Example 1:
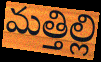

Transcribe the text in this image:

మత్తిల్లి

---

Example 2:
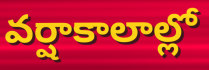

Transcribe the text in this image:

వర్షాకాలాల్లో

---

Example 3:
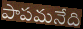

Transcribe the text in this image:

పాపమనేది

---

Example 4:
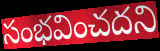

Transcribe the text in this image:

సంభవించదని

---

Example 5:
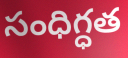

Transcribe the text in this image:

సంధిగ్ధత